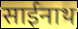
साईनाथ